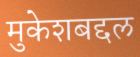
मुकेशबद्दल